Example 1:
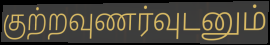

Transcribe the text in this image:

குற்றவுணர்வுடனும்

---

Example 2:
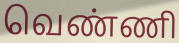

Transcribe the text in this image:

வெண்ணி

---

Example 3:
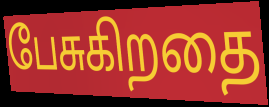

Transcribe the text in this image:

பேசுகிறதை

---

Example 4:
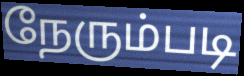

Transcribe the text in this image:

நேரும்படி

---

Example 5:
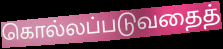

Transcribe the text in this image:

கொல்லப்படுவதைத்